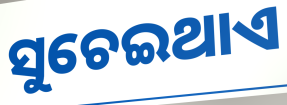
ସୁଚେଇଥାଏ